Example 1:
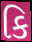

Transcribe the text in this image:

કિ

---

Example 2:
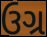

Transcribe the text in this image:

ઉગ્ર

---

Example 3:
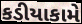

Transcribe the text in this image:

કડીયાકામે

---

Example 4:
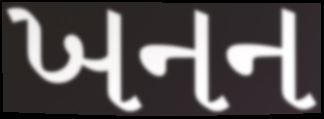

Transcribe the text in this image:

ખનન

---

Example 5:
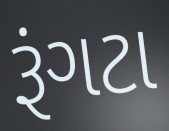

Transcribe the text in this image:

રૂંગટા